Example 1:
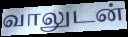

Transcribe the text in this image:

வாலுடன்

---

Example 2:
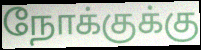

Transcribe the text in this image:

நோக்குக்கு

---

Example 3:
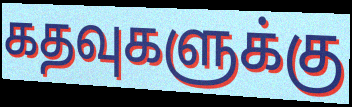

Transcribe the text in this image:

கதவுகளுக்கு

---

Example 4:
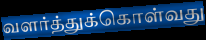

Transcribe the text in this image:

வளர்த்துக்கொள்வது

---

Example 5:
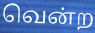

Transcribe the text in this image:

வென்ற